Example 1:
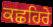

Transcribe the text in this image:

ਕਛਹਿਰੇ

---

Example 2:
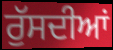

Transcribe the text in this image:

ਰੁੱਸਦੀਆਂ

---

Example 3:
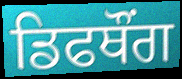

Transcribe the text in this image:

ਡਿਫਥੌਂਗ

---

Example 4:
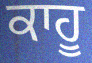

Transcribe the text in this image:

ਕਾਹੂ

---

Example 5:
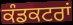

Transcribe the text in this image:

ਕੰਡਕਟਰਾਂ